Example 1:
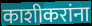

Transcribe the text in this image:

काशीकरांना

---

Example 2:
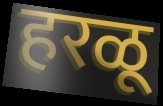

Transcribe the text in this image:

हरळू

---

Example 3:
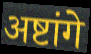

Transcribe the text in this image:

अष्टांगे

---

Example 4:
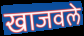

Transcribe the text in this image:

खाजवले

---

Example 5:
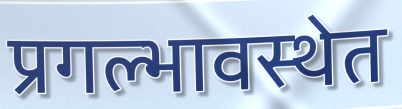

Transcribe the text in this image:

प्रगल्भावस्थेत